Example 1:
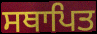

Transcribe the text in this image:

ਸਥਾਪਿਤ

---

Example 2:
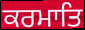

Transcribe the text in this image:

ਕਰਮਾਤਿ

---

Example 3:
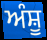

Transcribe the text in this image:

ਅੰਸ਼ੂ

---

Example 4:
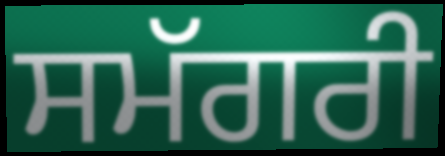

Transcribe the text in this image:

ਸਮੱਗਰੀ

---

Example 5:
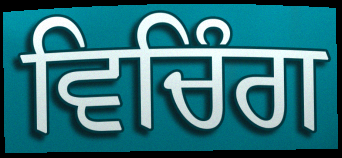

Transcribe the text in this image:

ਵਿਚਿੰਗ